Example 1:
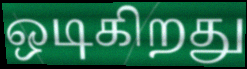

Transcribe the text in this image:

ஒடிகிறது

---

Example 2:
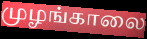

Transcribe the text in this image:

முழங்காலை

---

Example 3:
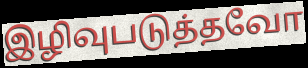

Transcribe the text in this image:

இழிவுபடுத்தவோ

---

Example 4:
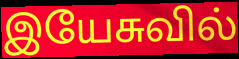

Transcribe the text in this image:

இயேசுவில்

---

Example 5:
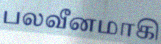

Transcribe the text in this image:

பலவீனமாகி